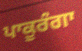
ਪਾਕੂਰੰਗਾ